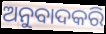
ଅନୁବାଦକରି